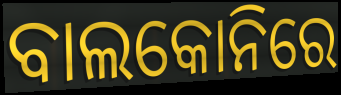
ବାଲକୋନିରେ